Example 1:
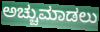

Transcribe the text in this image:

ಅಚ್ಚುಮಾಡಲು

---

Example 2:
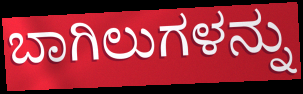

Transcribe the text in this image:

ಬಾಗಿಲುಗಳನ್ನು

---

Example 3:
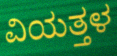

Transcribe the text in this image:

ವಿಯತ್ತಳ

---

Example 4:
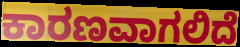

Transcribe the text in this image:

ಕಾರಣವಾಗಲಿದೆ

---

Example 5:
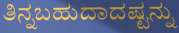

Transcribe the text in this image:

ತಿನ್ನಬಹುದಾದಷ್ಟನ್ನು